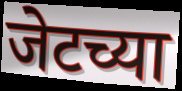
जेटच्या